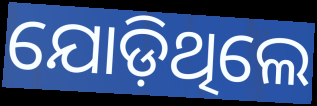
ଯୋଡ଼ିଥିଲେ